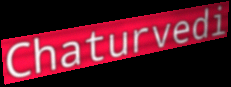
Chaturvedi